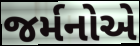
જર્મનોએ